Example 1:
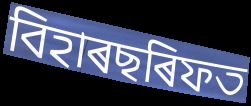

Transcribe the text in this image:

বিহাৰছৰিফত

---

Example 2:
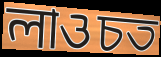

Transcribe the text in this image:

লাওচত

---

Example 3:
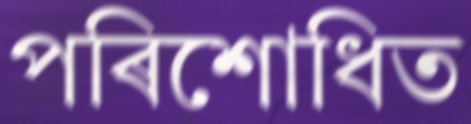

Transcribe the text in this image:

পৰিশোধিত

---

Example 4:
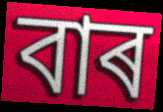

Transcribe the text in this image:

বাৰ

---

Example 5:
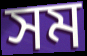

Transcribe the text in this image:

সম